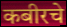
कबीरचे